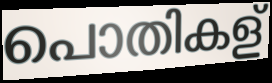
പൊതികള്